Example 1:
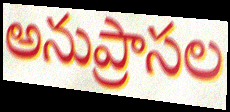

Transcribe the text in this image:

అనుప్రాసల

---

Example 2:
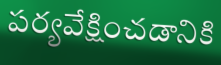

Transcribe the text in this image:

పర్యవేక్షించడానికి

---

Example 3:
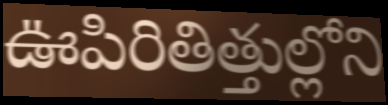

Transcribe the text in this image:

ఊపిరితిత్తుల్లోని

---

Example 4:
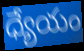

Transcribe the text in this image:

ధ్యేయం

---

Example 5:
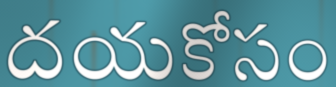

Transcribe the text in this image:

దయకోసం